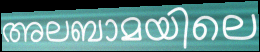
അലബാമയിലെ